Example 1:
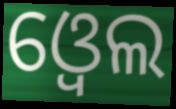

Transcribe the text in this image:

ଓ୍ବେଲ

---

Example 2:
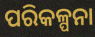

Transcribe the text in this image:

ପରିକଳ୍ପନା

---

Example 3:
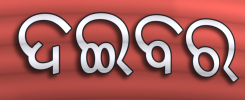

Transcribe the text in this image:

ଦଇବର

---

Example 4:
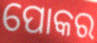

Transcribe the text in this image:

ପୋକର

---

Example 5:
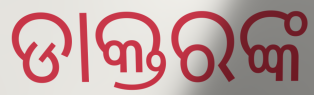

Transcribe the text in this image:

ଡାକ୍ତରଙ୍କ